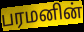
பரமனின்